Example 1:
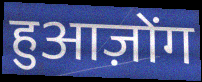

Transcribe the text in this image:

हुआज़ोंग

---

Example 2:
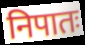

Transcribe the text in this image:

निपातः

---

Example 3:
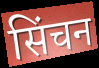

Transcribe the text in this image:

सिंचन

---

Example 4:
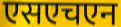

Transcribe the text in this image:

एसएचएन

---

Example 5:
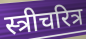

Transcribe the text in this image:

स्त्रीचरित्र